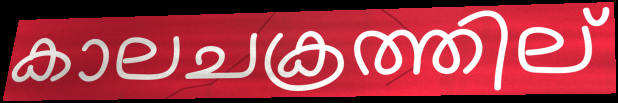
കാലചക്രത്തില്